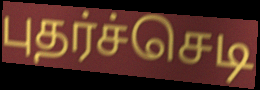
புதர்ச்செடி